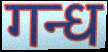
गन्‍ध